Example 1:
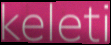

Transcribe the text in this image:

keleti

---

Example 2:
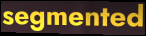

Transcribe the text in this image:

segmented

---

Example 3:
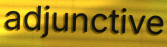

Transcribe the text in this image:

adjunctive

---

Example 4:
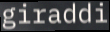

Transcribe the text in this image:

giraddi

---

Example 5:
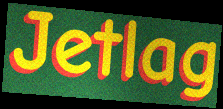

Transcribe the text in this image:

Jetlag